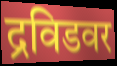
द्रविडवर